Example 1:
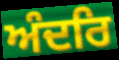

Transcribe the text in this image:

ਅੰਦਰਿ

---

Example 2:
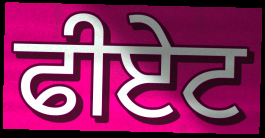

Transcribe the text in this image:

ਫੀਏਟ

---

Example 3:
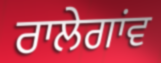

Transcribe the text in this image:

ਰਾਲੇਗਾਂਵ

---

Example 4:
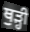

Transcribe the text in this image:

ਥੁੜ੍ਹੀ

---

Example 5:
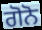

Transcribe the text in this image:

ਗੋਨੋ